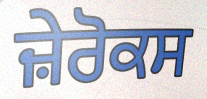
ਜ਼ੇਰੋਕਸ